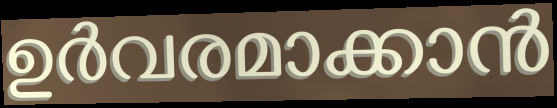
ഉർവരമാക്കാൻ